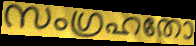
സംഗ്രഹതോ